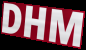
DHM